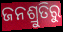
ଜନଶ୍ରୁତିରୁ